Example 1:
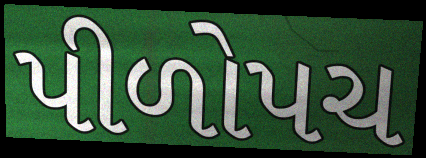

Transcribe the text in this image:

પીળોપચ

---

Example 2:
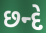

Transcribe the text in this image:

છન્દે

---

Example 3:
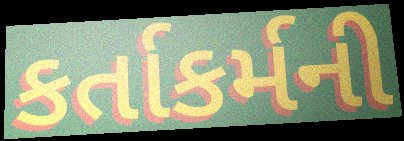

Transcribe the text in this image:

કર્તાકર્મની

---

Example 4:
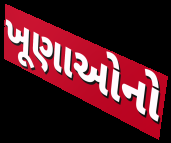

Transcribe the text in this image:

ખૂણાઓનો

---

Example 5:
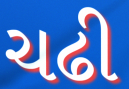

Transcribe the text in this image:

ચઢી